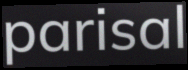
parisal